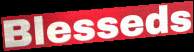
Blesseds